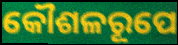
କୌଶଳରୂପେ